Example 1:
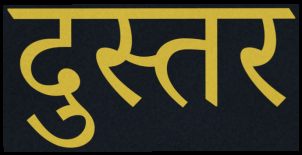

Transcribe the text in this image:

दुस्तर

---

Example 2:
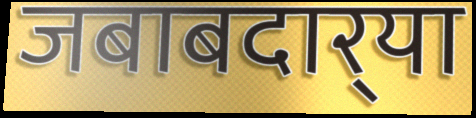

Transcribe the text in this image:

जबाबदार्‍या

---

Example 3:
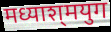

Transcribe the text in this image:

मध्याश्मयुग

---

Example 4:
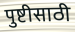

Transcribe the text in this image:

पुष्टीसाठी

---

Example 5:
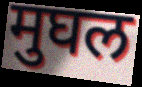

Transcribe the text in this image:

मुघल